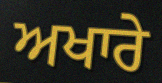
ਅਖਾਰੇ